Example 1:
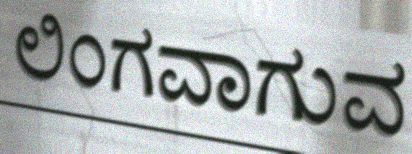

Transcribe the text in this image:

ಲಿಂಗವಾಗುವ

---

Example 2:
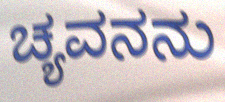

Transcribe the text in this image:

ಚ್ಯವನನು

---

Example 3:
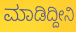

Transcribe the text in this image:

ಮಾಡಿದ್ದೀನಿ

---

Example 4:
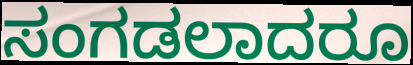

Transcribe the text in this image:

ಸಂಗಡಲಾದರೂ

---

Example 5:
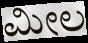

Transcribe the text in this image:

ಮೀಲ